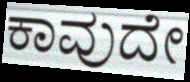
ಕಾವುದೇ